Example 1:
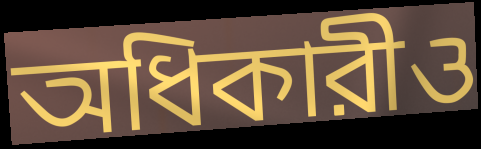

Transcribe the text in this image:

অধিকারীও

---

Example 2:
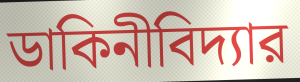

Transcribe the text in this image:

ডাকিনীবিদ্যার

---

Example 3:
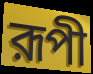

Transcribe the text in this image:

রূপী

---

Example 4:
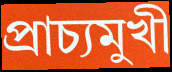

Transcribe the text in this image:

প্রাচ্যমুখী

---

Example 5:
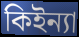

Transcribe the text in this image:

কিইন্যা